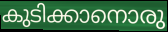
കുടിക്കാനൊരു